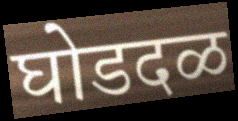
घोडदळ